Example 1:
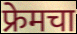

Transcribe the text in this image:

फ्रेमचा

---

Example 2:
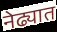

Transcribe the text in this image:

नेढ्यात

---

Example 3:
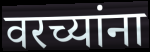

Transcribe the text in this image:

वरच्यांना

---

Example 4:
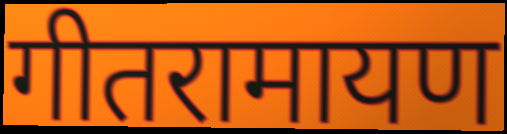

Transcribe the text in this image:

गीतरामायण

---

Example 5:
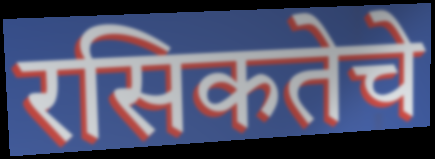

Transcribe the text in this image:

रसिकतेचे